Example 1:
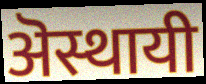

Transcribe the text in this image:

ऄस्थायी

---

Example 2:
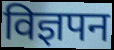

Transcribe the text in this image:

विज्ञपन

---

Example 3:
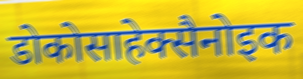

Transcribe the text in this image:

डोकोसाहेक्सैनोइक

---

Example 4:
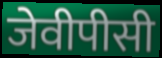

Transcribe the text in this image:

जेवीपीसी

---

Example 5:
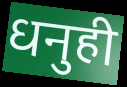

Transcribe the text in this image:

धनुही